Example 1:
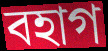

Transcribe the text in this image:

বহাগ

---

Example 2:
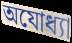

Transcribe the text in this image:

অযোধ্যা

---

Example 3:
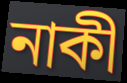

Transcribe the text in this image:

নাকী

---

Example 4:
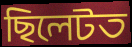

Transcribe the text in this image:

ছিলেটত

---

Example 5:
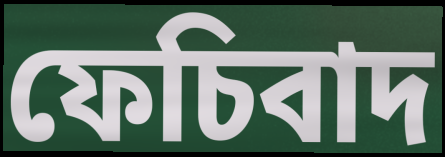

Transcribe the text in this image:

ফেচিবাদ